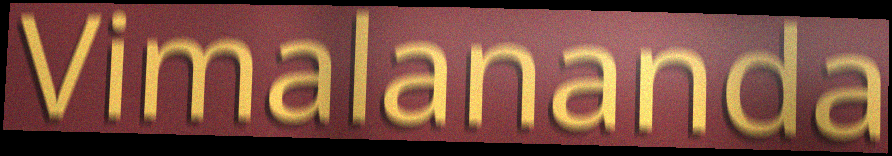
Vimalananda